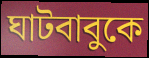
ঘাটবাবুকে